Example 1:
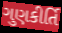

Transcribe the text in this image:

ગુણકીર્તિ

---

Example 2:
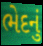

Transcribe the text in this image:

ભેદનું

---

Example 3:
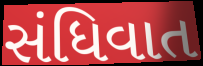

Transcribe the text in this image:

સંધિવાત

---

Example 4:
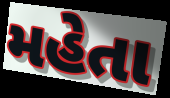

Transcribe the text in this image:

મહેતા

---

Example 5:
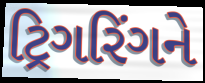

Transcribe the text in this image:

ટ્રિગરિંગને